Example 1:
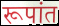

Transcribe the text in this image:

रूपांत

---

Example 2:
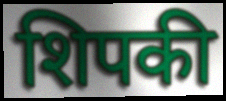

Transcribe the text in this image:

शिपकी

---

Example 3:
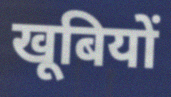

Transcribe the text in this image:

खूबियों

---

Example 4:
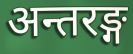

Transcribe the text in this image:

अन्तरङ्ग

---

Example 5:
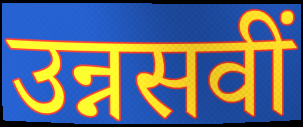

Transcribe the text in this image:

उन्नसवीं